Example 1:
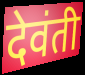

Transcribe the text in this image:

देवंती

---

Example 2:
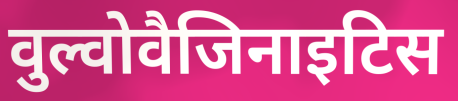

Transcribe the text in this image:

वुल्वोवैजिनाइटिस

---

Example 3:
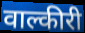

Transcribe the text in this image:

वाल्कीरी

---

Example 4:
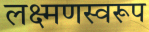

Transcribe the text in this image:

लक्ष्मणस्वरूप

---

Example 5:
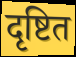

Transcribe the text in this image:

दृष्टित